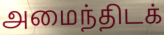
அமைந்திடக்